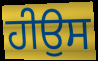
ਹੀਉਸ